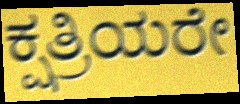
ಕ್ಷತ್ರಿಯರೇ